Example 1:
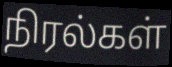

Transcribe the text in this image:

நிரல்கள்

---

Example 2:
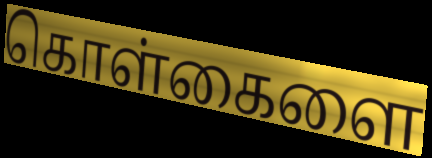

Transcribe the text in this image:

கொள்கைளை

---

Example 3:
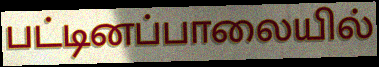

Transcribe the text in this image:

பட்டினப்பாலையில்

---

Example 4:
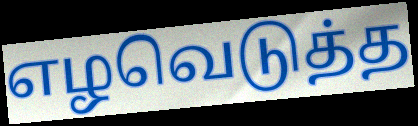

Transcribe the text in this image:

எழவெடுத்த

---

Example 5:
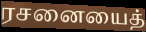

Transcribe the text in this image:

ரசனையைத்